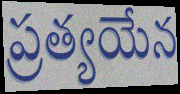
ప్రత్యయేన